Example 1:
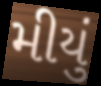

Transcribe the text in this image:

મીયું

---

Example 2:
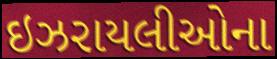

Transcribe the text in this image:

ઇઝરાયલીઓના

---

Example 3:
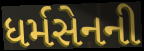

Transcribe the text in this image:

ધર્મસેનની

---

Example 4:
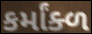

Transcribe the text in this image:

કર્માંક્ળ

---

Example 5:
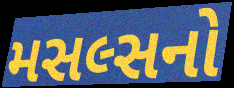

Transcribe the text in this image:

મસલ્સનો